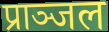
प्राञ्जल